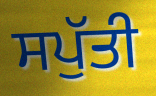
ਸਪੁੱਤੀ